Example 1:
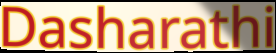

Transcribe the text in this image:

Dasharathi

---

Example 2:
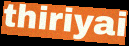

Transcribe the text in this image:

thiriyai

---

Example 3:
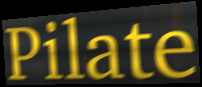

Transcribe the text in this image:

Pilate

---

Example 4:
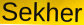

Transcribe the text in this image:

Sekher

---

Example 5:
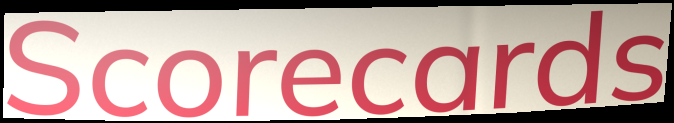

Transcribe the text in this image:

Scorecards